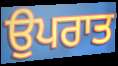
ਉਪਰਾਤ